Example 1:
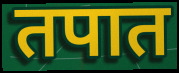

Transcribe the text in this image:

तपात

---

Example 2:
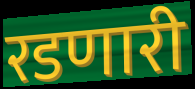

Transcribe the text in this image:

रडणारी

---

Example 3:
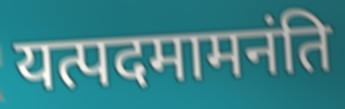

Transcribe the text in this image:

यत्पदमामनंति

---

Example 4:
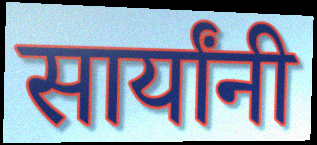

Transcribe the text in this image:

सार्यांनी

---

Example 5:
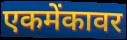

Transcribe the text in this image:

एकमेंकावर